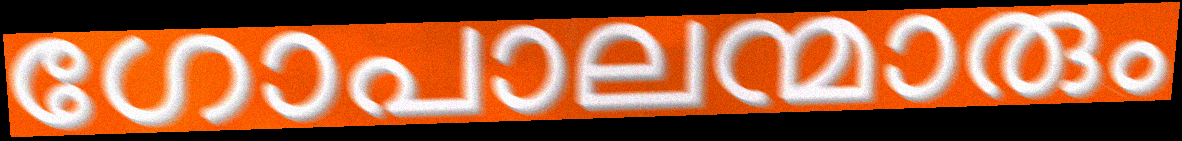
ഗോപാലന്മാരും